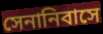
সেনানিবাসে